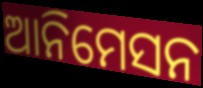
ଆନିମେସନ